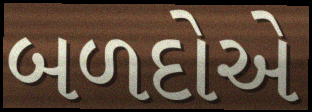
બળદોએ